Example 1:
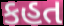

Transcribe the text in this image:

કહત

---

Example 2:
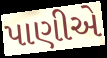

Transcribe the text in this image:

પાણીએ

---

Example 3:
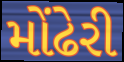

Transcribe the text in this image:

મોંઢેરી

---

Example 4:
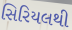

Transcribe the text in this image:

સિરિયલથી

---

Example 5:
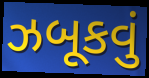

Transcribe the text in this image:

ઝબૂકવું